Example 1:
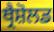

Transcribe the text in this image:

ਥ੍ਰੈਸ਼ੋਲਡ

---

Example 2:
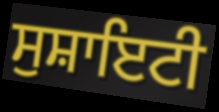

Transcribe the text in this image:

ਸੁਸ਼ਾਇਟੀ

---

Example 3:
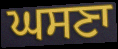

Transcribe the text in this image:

ਘਸਣਾ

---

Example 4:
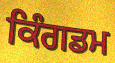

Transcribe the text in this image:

ਕਿੰਗਡਮ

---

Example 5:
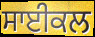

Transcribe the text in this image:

ਸਾਈਕਲ